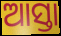
ଆସ୍ତା